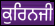
ਕੁਰਿਨਜੀ